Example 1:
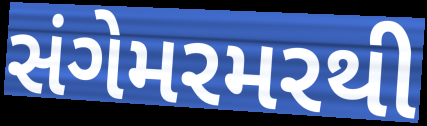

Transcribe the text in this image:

સંગેમરમરથી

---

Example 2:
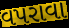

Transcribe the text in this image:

વપરાવા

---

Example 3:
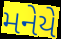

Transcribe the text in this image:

મનેયે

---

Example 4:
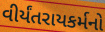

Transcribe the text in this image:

વીર્યંતરાયકર્મનો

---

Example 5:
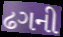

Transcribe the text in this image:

ઢગની